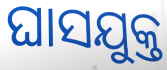
ଘାସଯୁକ୍ତ